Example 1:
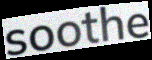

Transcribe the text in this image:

soothe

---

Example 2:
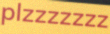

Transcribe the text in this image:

plzzzzzzz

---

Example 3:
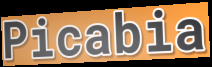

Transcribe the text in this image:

Picabia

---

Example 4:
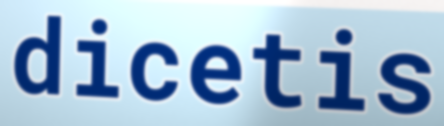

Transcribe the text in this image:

dicetis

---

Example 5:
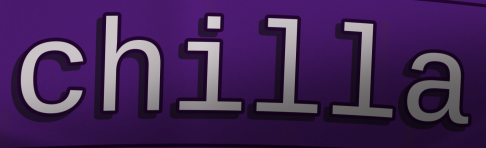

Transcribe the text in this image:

chilla